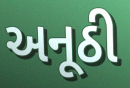
અનૂઠી